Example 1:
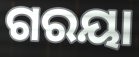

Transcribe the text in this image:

ଗରୟା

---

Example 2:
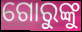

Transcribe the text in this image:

ଗୋରୁଙ୍କୁ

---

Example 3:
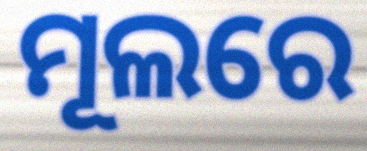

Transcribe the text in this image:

ମୂଲରେ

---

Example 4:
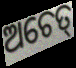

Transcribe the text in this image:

ଅଚେତ୍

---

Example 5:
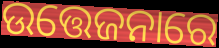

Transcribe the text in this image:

ଉତ୍ତେଜନାରେ